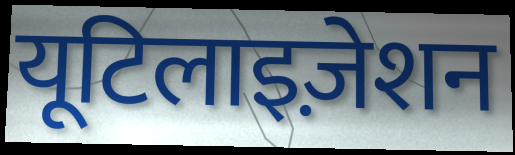
यूटिलाइज़ेशन